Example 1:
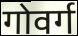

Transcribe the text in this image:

गोवर्ग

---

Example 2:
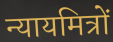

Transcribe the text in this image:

न्यायमित्रों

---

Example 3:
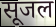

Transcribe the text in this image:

सूजल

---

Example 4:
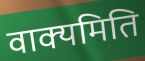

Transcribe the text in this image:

वाक्यमिति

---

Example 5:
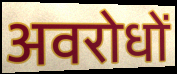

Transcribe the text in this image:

अवरोधों